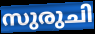
സുരുചി